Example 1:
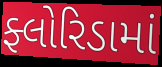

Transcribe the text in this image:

ફ્લોરિડામાં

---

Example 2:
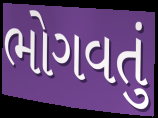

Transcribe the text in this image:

ભોગવતું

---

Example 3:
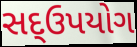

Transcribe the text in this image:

સદ્ઉપયોગ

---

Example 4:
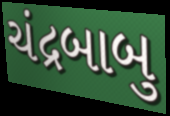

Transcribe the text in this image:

ચંદ્રબાબુ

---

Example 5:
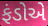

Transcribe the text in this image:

ફંડોએ